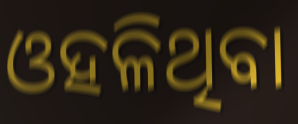
ଓହଳିଥିବା